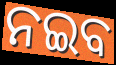
ନଇବ